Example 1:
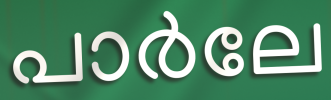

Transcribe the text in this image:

പാർലേ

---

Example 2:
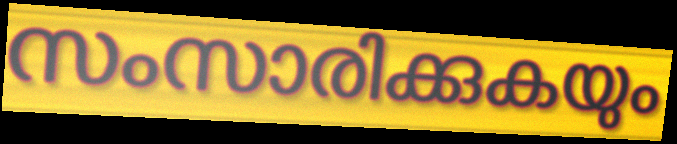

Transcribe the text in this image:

സംസാരിക്കുകയും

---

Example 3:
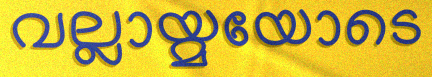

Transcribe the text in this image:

വല്ലായ്മയോടെ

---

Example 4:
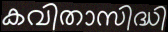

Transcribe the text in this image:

കവിതാസിദ്ധി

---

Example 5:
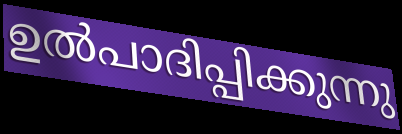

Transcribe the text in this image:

ഉൽപാദിപ്പിക്കുന്നു